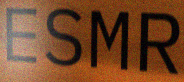
ESMR